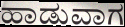
ಹಾಡುವಾಗ